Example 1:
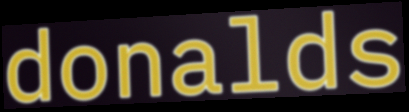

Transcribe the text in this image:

donalds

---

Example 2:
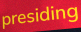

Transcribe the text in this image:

presiding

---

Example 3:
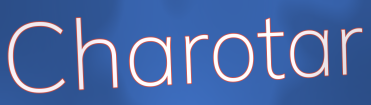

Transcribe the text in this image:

Charotar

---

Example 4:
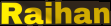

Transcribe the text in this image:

Raihan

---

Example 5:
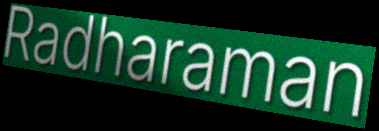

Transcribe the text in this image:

Radharaman